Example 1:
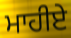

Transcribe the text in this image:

ਮਾਹੀਏ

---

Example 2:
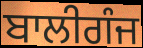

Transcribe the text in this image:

ਬਾਲੀਗੰਜ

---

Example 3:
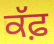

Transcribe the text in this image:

ਕੱਫ਼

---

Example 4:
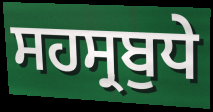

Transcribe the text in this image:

ਸਹਸ੍ਰਬੁਧੇ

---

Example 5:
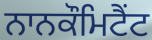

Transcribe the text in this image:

ਨਾਨਕੌਮਿਟੈਂਟ